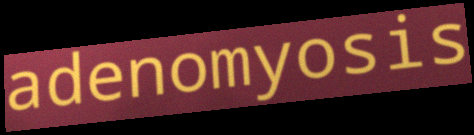
adenomyosis